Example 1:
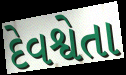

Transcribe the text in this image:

દેવશ્વેતા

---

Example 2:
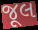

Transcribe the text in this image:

જૂલ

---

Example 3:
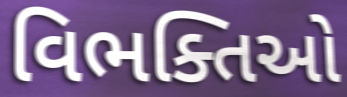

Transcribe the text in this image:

વિભક્તિઓ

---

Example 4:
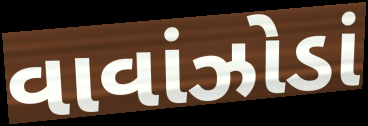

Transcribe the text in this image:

વાવાંઝોડાં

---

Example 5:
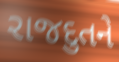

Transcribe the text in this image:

રાજદુતને